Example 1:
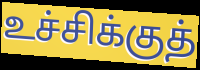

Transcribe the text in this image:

உச்சிக்குத்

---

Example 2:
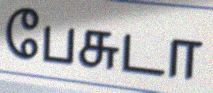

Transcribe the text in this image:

பேசுடா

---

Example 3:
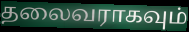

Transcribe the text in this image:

தலைவராகவும்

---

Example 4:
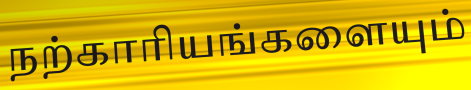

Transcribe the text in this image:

நற்காரியங்களையும்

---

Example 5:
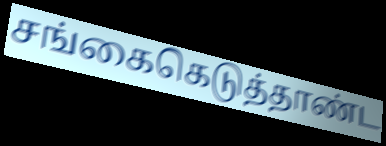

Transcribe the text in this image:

சங்கைகெடுத்தாண்ட